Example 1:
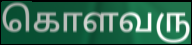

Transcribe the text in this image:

கொளவரு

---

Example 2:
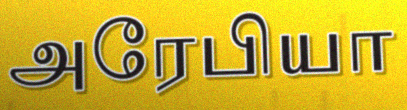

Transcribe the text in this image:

அரேபியா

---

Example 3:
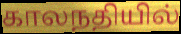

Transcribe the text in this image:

காலநதியில்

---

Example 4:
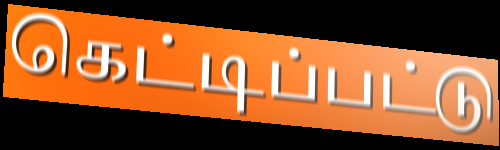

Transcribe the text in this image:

கெட்டிப்பட்டு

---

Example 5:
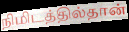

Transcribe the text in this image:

நிமிடத்தில்தான்